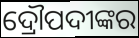
ଦ୍ରୌପଦୀଙ୍କର